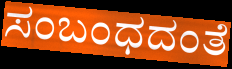
ಸಂಬಂಧದಂತೆ